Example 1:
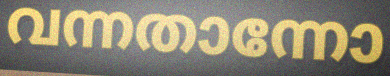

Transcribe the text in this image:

വന്നതാന്നോ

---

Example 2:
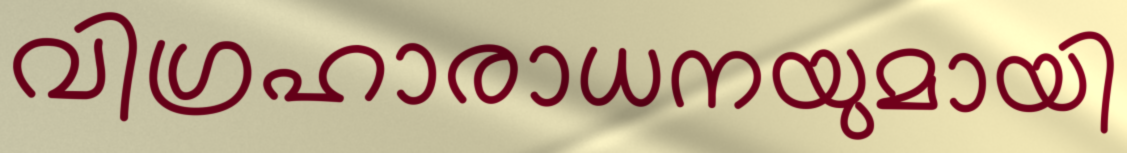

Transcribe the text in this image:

വിഗ്രഹാരാധനയുമായി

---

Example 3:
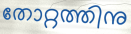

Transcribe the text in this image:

തോറ്റത്തിനു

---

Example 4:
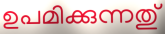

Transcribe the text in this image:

ഉപമിക്കുന്നതു്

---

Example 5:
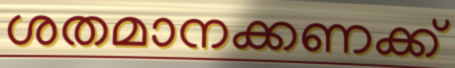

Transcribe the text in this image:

ശതമാനക്കണക്ക്